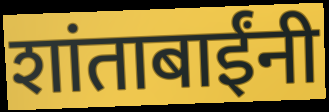
शांताबाईंनी